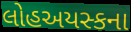
લોહઅયસ્કના